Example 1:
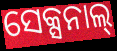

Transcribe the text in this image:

ସେକ୍ସନାଲ୍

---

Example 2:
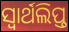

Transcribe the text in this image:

ସ୍ୱାର୍ଥଲିପ୍ତ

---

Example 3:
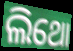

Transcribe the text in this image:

ଲିଥୋ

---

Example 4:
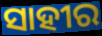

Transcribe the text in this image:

ସାହୀର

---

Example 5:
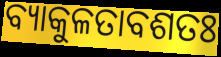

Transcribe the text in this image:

ବ୍ୟାକୁଳତାବଶତଃ